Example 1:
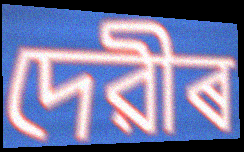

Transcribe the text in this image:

দেৱীৰ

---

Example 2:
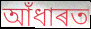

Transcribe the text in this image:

আঁধাৰত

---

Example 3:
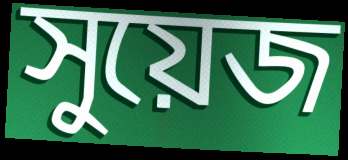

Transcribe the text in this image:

সুয়েজ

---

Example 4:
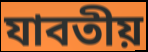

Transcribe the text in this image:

যাবতীয়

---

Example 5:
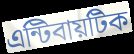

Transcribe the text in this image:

এন্টিবায়টিক